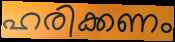
ഹരിക്കണം